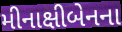
મીનાક્ષીબેનના